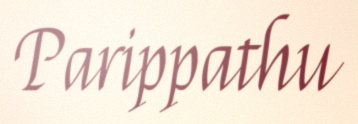
Parippathu